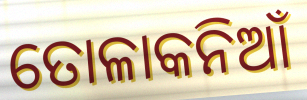
ତୋଳାକନିଆଁ